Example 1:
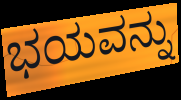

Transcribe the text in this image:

ಭಯವನ್ನು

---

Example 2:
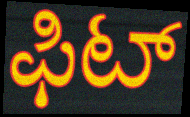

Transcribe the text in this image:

ಫಿಟ್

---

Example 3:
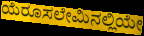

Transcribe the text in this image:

ಯೆರೂಸಲೇಮಿನಲ್ಲಿಯೇ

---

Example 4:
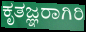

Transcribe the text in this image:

ಕೃತಜ್ಞರಾಗಿರಿ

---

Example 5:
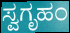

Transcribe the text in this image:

ಸ್ವಗೃಹಂ